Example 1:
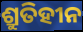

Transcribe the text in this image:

ଶ୍ରୁତିହୀନ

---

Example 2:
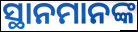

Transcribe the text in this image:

ସ୍ଥାନମାନଙ୍କ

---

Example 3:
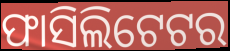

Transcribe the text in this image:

ଫାସିଲିଟେଟର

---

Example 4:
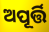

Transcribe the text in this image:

ଅପୂର୍ତ୍ତି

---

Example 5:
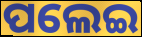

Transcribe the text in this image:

ପଲେଇ